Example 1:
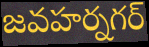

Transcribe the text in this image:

జవహర్నగర్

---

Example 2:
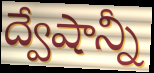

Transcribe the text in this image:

ద్వేషాన్నీ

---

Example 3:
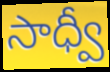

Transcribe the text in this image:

సాధ్వీ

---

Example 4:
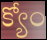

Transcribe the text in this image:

క్యోం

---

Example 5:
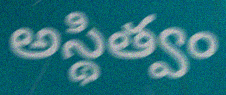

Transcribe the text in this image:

అస్థిత్వం